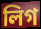
লিগ